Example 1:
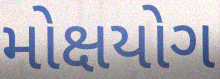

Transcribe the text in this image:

મોક્ષયોગ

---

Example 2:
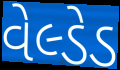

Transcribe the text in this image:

વેલ્ડેડ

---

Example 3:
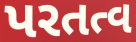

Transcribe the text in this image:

પરતત્વ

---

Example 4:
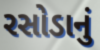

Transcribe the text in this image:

રસોડાનું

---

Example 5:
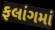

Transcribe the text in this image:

ફલાંગમાં